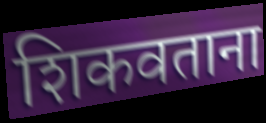
शिकवताना